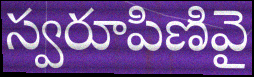
స్వరూపిణివై